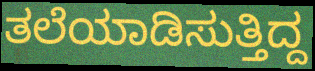
ತಲೆಯಾಡಿಸುತ್ತಿದ್ದ